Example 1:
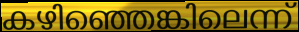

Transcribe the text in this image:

കഴിഞ്ഞെങ്കിലെന്ന്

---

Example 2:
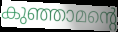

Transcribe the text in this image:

കുഞ്ഞാമന്റെ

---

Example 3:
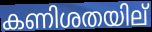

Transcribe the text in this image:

കണിശതയില്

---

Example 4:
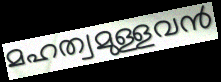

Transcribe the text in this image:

മഹത്വമുള്ളവൻ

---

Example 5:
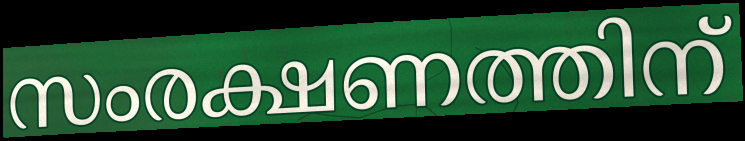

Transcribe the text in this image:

സംരക്ഷണത്തിന്